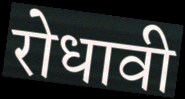
रोधावी